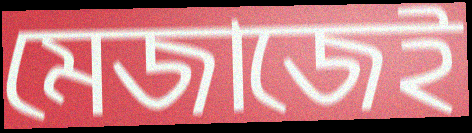
মেজাজেই